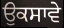
ਉਕਸਾਵੇ